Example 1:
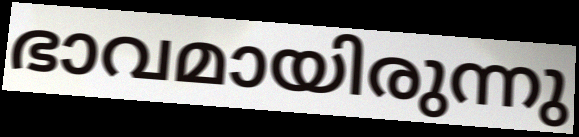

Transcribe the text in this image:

ഭാവമായിരുന്നു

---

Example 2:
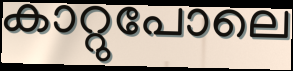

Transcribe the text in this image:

കാറ്റുപോലെ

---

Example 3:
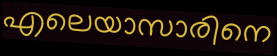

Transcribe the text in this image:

എലെയാസാരിനെ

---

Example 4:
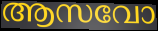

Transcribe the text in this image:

ആസവോ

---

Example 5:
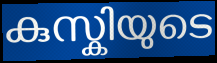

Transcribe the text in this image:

കുസ്കിയുടെ